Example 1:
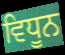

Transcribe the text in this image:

ਵਿਧੂਨ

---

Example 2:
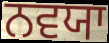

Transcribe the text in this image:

ਨਵਯਾ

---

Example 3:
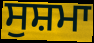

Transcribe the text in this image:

ਸੁਸ਼ਮਾ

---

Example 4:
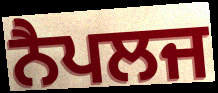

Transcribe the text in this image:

ਨੈਪਲਜ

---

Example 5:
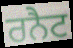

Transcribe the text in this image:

ਰਨੈਟ